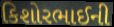
કિશોરભાઈની